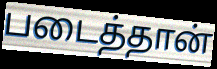
படைத்தான்